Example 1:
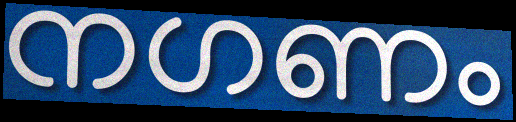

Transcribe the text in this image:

നഗണം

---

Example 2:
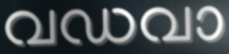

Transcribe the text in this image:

വഡവാ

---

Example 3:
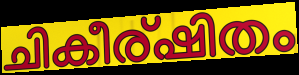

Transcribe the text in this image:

ചികീര്ഷിതം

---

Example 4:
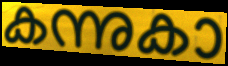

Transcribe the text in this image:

കന്നുകാ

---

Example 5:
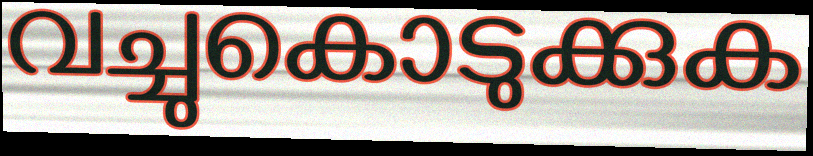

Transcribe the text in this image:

വച്ചുകൊടുക്കുക